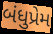
બંધુપ્રેમ